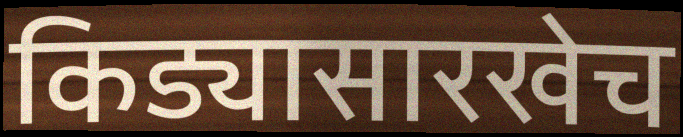
किड्यासारखेच